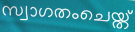
സ്വാഗതംചെയ്ത്